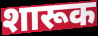
शारूक